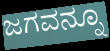
ಜಗವನ್ನೂ